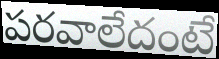
పరవాలేదంటే